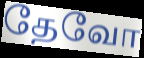
தேவோ